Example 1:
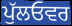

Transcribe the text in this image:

ਪੁੱਲਓਵਰ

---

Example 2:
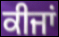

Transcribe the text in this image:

ਕੀਜਾਂ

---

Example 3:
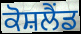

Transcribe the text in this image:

ਕੋਸ਼ਲੈਂਡ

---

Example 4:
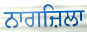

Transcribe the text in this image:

ਨਾਗਜ਼ਿਲਾ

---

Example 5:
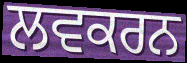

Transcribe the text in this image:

ਲਵਕਰਨ